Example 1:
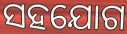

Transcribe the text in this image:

ସହଯୋଗ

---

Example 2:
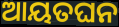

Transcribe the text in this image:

ଆୟତଘନ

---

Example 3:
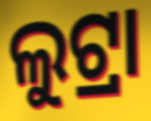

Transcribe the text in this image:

ଲୁଟ୍ରା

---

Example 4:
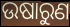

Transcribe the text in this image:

ଉଷାରୁଣ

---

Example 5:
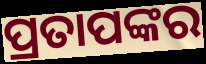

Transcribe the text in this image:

ପ୍ରତାପଙ୍କର